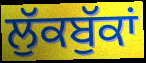
ਲੁੱਕਬੁੱਕਾਂ